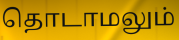
தொடாமலும்